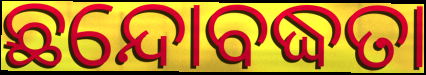
ଛନ୍ଦୋବଦ୍ଧତା